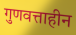
गुणवत्ताहीन